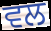
ਵਲ